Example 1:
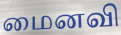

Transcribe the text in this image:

மைனவி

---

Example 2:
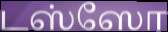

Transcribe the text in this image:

டஸ்ஸோ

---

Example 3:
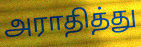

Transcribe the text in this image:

அராதித்து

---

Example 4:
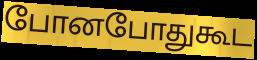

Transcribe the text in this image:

போனபோதுகூட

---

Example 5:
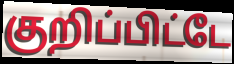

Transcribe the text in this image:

குறிப்பிட்டே